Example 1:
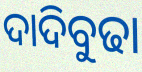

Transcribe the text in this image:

ଦାଦିବୁଢା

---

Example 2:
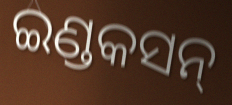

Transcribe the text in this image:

ଇଣ୍ଡକସନ୍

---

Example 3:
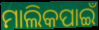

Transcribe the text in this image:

ମାଲିକପାଇଁ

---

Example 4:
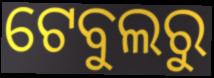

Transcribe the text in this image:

ଟେବୁଲରୁ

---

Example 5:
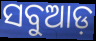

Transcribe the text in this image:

ସବୁଆଡ଼